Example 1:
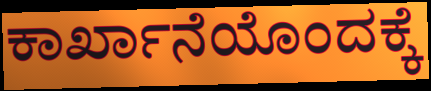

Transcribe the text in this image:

ಕಾರ್ಖಾನೆಯೊಂದಕ್ಕೆ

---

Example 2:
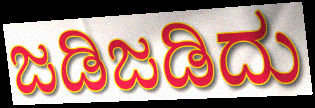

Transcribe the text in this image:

ಜಡಿಜಡಿದು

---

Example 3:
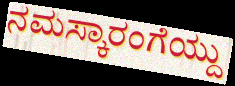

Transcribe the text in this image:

ನಮಸ್ಕಾರಂಗೆಯ್ದು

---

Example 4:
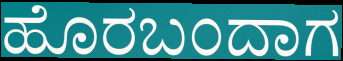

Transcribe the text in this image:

ಹೊರಬಂದಾಗ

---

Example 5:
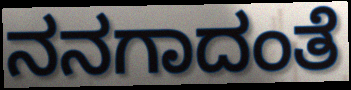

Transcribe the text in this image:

ನನಗಾದಂತೆ